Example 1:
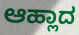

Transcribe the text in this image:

ಆಹ್ಲಾದ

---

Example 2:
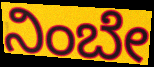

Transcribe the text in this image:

ನಿಂಬೇ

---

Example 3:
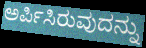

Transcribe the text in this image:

ಅರ್ಪಿಸಿರುವುದನ್ನು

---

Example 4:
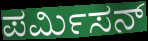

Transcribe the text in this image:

ಪರ್ಮಿಸನ್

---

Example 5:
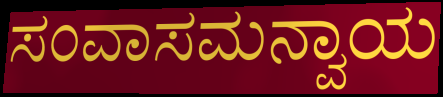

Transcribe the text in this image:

ಸಂವಾಸಮನ್ವಾಯ